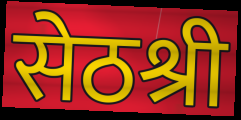
सेठश्री